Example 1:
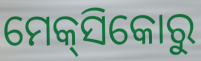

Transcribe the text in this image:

ମେକ୍‌ସିକୋରୁ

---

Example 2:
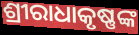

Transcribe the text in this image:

ଶ୍ରୀରାଧାକୃଷ୍ଣଙ୍କ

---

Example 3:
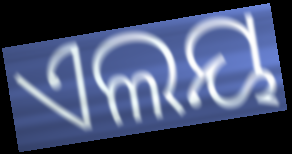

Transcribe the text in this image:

ଏଲୟ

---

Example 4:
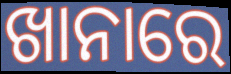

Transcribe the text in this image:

ଖାନାରେ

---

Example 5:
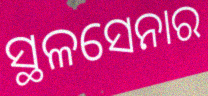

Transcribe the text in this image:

ସ୍ଥଳସେନାର